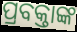
ପ୍ରବକ୍ତାଙ୍କ